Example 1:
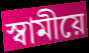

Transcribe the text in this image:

স্বামীয়ে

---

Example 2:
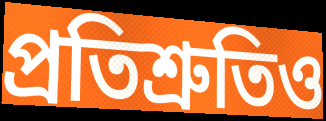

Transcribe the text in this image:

প্ৰতিশ্ৰুতিও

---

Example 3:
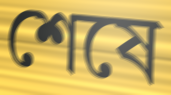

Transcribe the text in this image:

শেষে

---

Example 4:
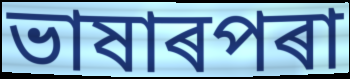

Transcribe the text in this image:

ভাষাৰপৰা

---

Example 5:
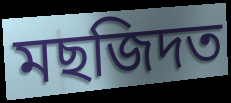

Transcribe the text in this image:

মছজিদত